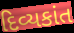
દિવ્યકાંત